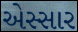
એસ્સાર